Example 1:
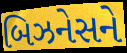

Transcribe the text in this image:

બિઝનેસને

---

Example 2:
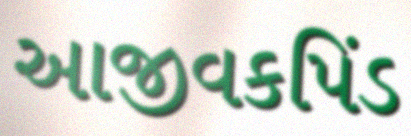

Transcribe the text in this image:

આજીવકપિંડ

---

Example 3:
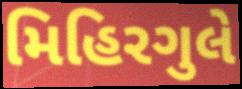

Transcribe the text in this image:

મિહિરગુલે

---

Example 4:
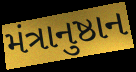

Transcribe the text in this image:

મંત્રાનુષ્ઠાન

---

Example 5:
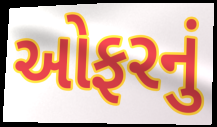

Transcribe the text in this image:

ઓફરનું